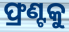
ଫ୍ରଣ୍ଟକୁ